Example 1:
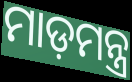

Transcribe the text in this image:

ମାଡ଼ମନ୍ତ୍ର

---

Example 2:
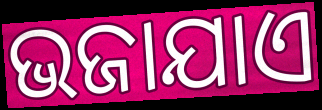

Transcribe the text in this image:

ଭଜାଯାଏ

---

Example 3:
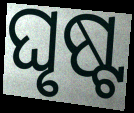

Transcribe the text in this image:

ଘୃଷ୍ଟ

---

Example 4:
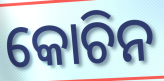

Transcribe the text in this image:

କୋଚିନ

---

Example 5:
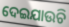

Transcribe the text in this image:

ଦେଇଯାଉଚି